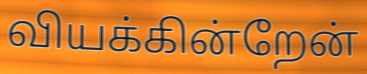
வியக்கின்றேன்